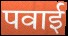
पवाई